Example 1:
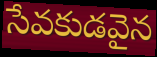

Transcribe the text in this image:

సేవకుడవైన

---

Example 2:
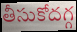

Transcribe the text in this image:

తీసుకోదగ్గ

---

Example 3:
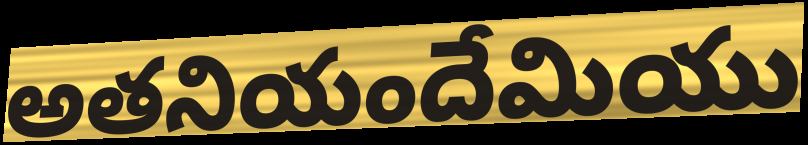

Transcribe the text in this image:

అతనియందేమియు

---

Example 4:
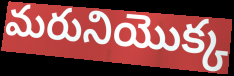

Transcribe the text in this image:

మరునియొక్క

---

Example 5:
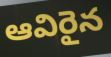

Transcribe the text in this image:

ఆవిరైన